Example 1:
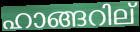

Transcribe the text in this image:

ഹാങ്ങറില്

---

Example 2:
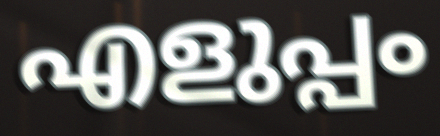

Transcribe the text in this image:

എളുപ്പം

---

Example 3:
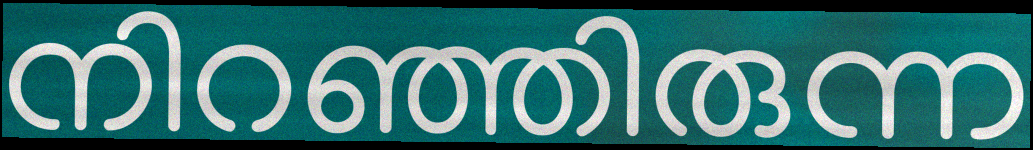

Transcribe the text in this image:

നിറഞ്ഞിരുന്ന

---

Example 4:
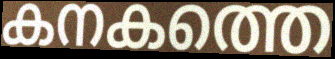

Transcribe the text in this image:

കനകത്തെ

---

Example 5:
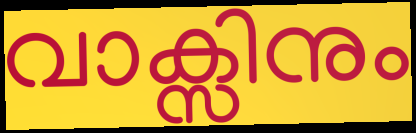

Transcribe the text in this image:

വാക്സിനും